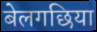
बेलगछिया